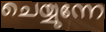
ചെയ്യുന്നേ